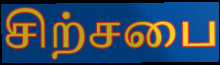
சிற்சபை